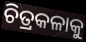
ଚିତ୍ରକଳାକୁ